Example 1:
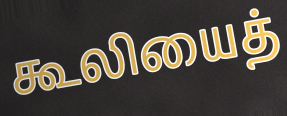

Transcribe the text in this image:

கூலியைத்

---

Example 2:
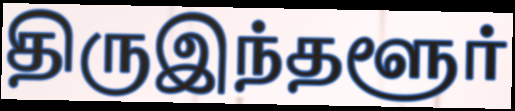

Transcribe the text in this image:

திருஇந்தளூர்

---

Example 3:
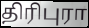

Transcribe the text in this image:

திரிபுரா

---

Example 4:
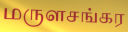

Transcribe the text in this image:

மருளசங்கர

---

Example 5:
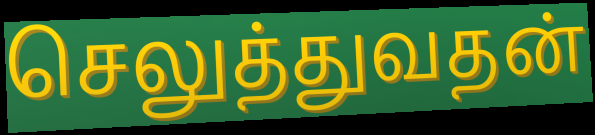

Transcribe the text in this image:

செலுத்துவதன்